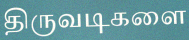
திருவடிகளை